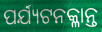
ପର୍ଯ୍ୟଟନକ୍ଳାନ୍ତ